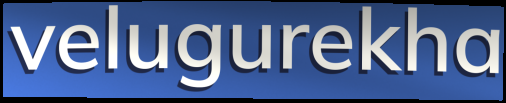
velugurekha